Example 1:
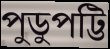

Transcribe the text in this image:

পুডুপট্টি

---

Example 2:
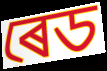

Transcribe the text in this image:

ৰেড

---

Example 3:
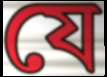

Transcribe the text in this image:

যে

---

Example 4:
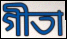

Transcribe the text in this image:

গীতা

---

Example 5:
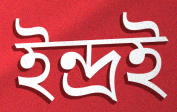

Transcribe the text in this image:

ইন্দ্ৰই